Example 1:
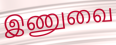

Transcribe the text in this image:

இணுவை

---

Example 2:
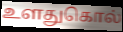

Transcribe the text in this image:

உளதுகொல்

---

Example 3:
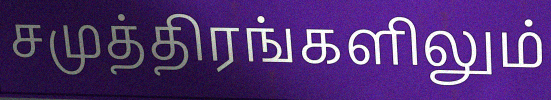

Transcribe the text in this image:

சமுத்திரங்களிலும்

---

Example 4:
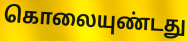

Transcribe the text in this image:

கொலையுண்டது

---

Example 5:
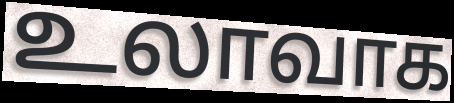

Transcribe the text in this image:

உலாவாக